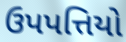
ઉપપત્તિયો